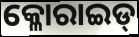
କ୍ଳୋରାଇଡ୍